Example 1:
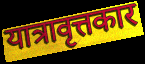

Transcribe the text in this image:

यात्रावृत्तकार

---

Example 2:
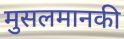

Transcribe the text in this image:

मुसलमानकी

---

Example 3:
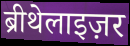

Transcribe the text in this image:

ब्रीथेलाइज़र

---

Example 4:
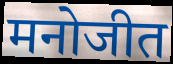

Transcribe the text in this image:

मनोजीत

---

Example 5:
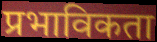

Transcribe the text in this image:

प्रभाविकता